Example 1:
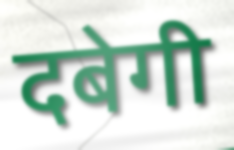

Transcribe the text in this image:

दबेगी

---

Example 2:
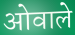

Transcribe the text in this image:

ओवाले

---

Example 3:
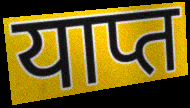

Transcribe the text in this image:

याप्त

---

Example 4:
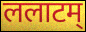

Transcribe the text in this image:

ललाटम्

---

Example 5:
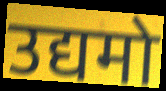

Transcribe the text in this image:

उद्यमो